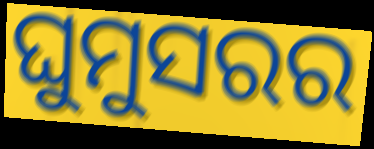
ଘୁମୁସରର